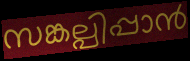
സങ്കല്പിപ്പാൻ